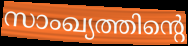
സാംഖ്യത്തിന്റെ